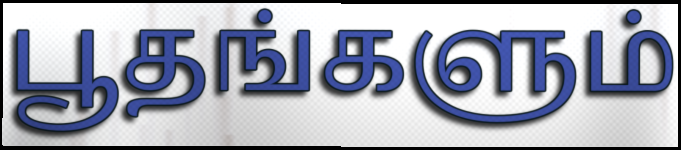
பூதங்களும்